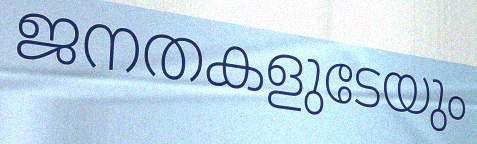
ജനതകളുടേയും